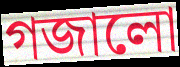
গজালো